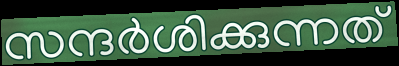
സന്ദർശിക്കുന്നത്